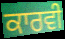
ਕਾਰਵੀ